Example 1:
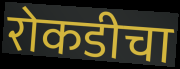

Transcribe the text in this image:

रोकडीचा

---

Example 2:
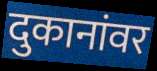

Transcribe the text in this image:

दुकानांवर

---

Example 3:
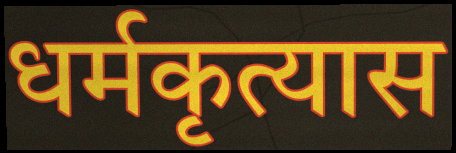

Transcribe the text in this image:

धर्मकृत्यास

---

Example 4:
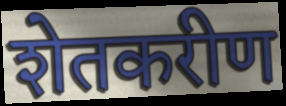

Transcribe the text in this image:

शेतकरीण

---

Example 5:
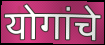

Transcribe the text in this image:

योगांचे